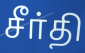
சீர்தி